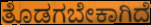
ತೊಡಗಬೇಕಾಗಿದೆ